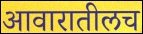
आवारातीलच